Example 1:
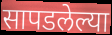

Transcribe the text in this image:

सापडलेल्या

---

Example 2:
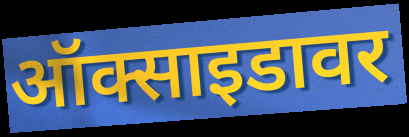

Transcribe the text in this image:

ऑक्साइडावर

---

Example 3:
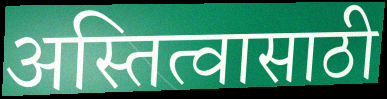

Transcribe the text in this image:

अस्तित्वासाठी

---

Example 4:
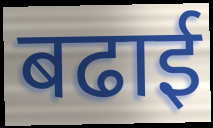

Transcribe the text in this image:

बढाई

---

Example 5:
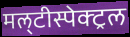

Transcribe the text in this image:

मल्टीस्पेक्ट्रल